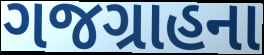
ગજગ્રાહના